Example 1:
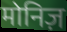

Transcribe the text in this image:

मोनिज़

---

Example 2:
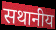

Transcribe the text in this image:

सथानीय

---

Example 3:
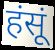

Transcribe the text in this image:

हंसूं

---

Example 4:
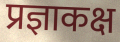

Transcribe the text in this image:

प्रज्ञाकक्ष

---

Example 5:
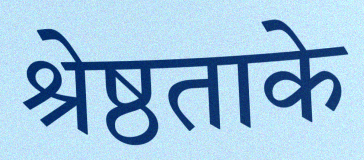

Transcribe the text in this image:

श्रेष्ठताके